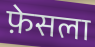
फ़ेसला